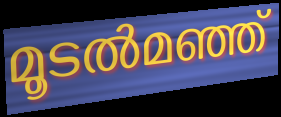
മൂടൽമഞ്ഞ്